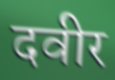
दवीर